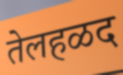
तेलहळद